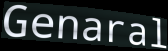
Genaral